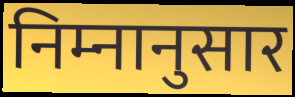
निम्‍नानुसार